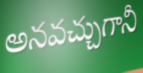
అనవచ్చుగానీ